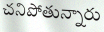
చనిపోతున్నారు